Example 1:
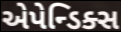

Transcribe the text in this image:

એપેન્ડિક્સ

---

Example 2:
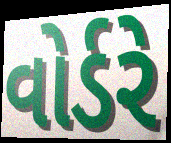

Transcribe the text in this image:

વોર્ડરે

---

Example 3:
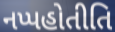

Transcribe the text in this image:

નપ્પહોતીતિ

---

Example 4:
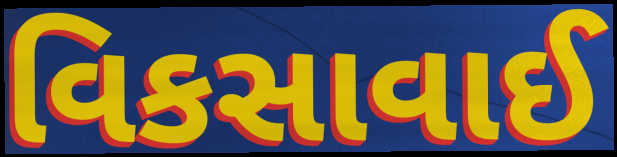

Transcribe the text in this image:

વિકસાવાઈ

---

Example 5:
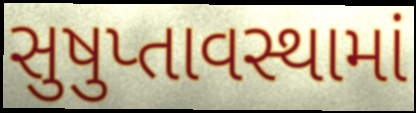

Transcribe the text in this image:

સુષુપ્તાવસ્થામાં